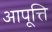
आपूत्ति